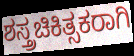
ಶಸ್ತ್ರಚಿಕಿತ್ಸಕರಾಗಿ